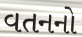
વતનનો